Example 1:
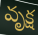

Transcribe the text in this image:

వృక్ష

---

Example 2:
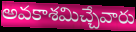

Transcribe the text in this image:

అవకాశమిచ్చేవారు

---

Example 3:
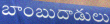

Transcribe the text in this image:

బాంబుదాడులు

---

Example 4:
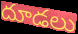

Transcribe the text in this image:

దూడలు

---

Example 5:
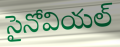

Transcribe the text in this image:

సైనోవియల్